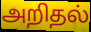
அறிதல்